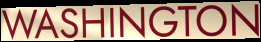
WASHINGTON